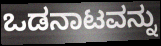
ಒಡನಾಟವನ್ನು